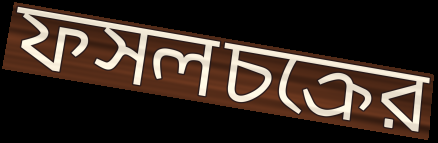
ফসলচক্রের